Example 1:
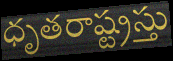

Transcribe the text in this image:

ధృతరాష్ట్రస్తు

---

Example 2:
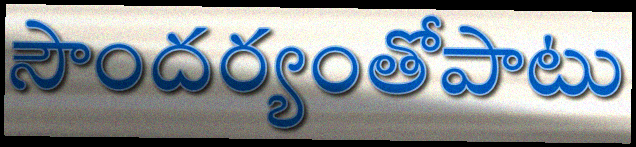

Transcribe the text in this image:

సౌందర్యంతోపాటు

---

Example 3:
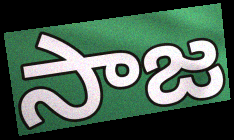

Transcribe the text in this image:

సాజ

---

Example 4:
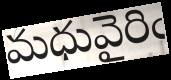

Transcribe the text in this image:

మధువైరిఁ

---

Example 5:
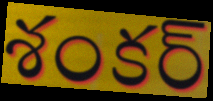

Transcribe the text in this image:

శంకర్